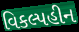
વિકલ્પહીન